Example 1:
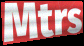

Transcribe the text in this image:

Mtrs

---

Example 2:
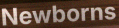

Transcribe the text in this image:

Newborns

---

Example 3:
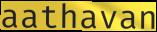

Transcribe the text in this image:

aathavan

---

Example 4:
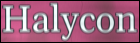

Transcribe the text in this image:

Halycon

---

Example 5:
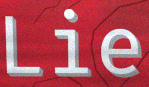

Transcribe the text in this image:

Lie